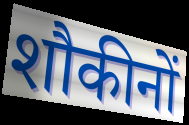
शौकीनों